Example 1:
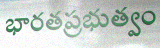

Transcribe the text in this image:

భారతప్రభుత్వం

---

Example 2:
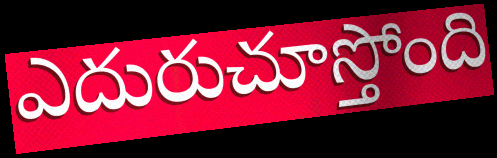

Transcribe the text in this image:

ఎదురుచూస్తోంది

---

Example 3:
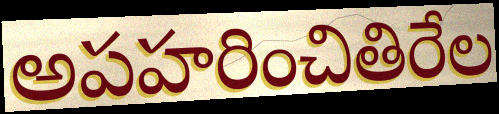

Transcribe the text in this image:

అపహరించితిరేల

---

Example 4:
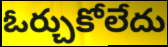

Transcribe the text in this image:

ఓర్చుకోలేదు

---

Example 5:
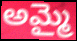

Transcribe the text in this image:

అమ్మై